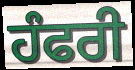
ਹੰਫਰੀ